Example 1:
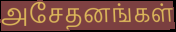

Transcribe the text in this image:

அசேதனங்கள்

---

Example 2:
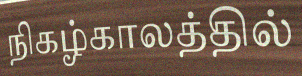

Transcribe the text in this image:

நிகழ்காலத்தில்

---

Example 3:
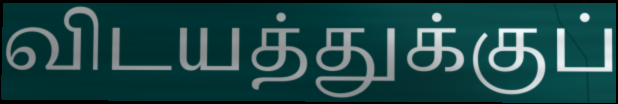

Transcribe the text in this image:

விடயத்துக்குப்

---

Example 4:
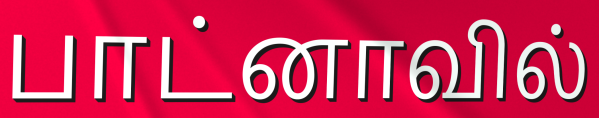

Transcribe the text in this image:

பாட்னாவில்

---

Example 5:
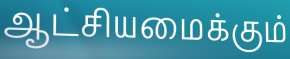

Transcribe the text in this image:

ஆட்சியமைக்கும்